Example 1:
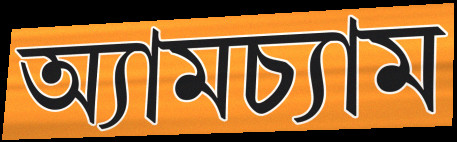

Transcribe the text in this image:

অ্যামচ্যাম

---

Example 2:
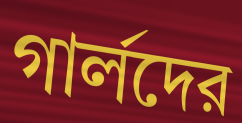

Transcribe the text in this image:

গার্লদের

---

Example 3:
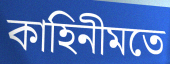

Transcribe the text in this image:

কাহিনীমতে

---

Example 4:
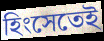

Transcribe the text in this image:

হিংসেতেই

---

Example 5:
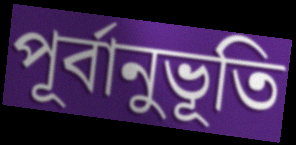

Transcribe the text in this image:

পূর্বানুভূতি